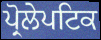
ਪ੍ਰੋਲੇਪਟਿਕ